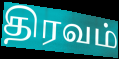
திரவம்